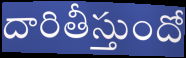
దారితీస్తుందో